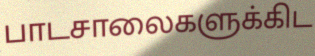
பாடசாலைகளுக்கிட